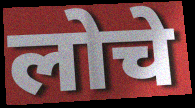
लोचे